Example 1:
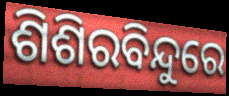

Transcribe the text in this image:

ଶିଶିରବିନ୍ଦୁରେ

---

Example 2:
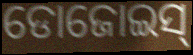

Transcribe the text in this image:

ଡୋଜୋଇସ୍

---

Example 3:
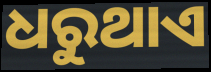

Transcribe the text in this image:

ଧରୁଥାଏ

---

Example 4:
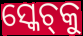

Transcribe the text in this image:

ସ୍କେଚ୍‌କୁ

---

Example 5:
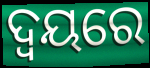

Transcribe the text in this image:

ଦ୍ୱୟରେ